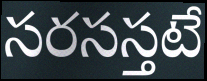
సరసస్తటే